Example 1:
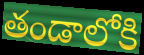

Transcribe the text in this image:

తండాలోకి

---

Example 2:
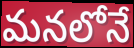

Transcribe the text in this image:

మనలోనే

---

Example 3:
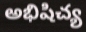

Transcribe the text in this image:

అభిషిచ్య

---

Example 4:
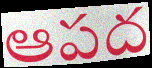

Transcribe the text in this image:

ఆపద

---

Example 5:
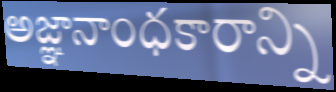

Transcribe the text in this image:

అజ్ఞానాంధకారాన్ని